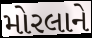
મોરલાને